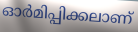
ഓർമിപ്പിക്കലാണ്